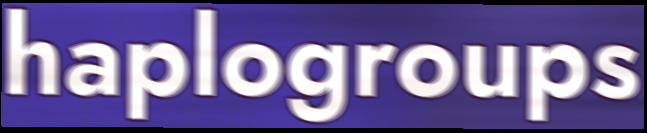
haplogroups